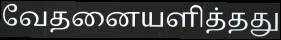
வேதனையளித்தது